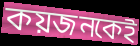
কয়জনকেই